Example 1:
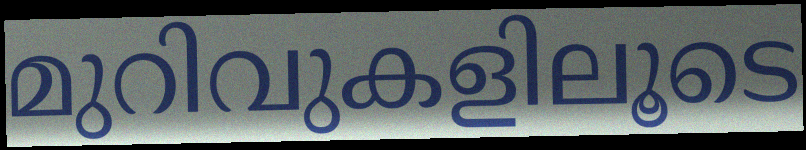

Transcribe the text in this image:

മുറിവുകളിലൂടെ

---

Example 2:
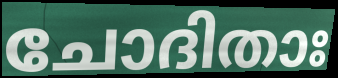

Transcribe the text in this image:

ചോദിതാഃ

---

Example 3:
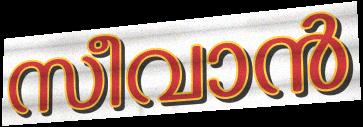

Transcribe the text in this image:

സീവാൻ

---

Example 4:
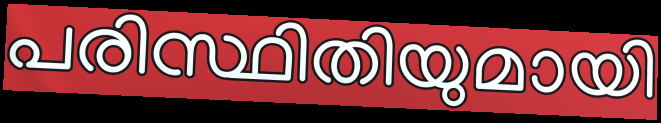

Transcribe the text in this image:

പരിസ്ഥിതിയുമായി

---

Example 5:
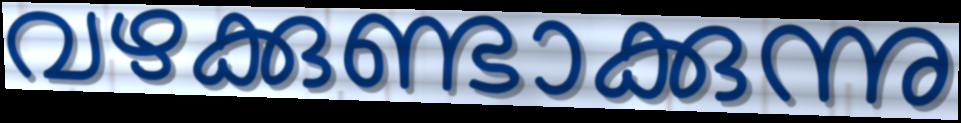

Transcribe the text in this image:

വഴക്കുണ്ടാക്കുന്നു